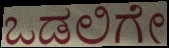
ಒಡಲಿಗೇ